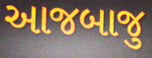
આજબાજુ